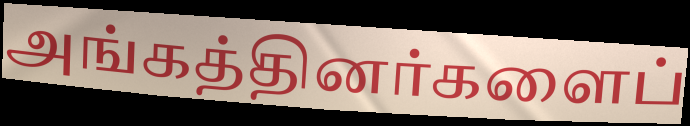
அங்கத்தினர்களைப்